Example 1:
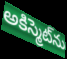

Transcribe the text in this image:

అకిస్మెట్‌ను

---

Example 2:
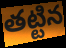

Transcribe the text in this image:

తట్టిన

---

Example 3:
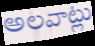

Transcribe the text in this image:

అలవాట్లు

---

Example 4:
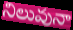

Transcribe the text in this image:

నిలువునా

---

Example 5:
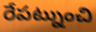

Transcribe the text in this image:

రేపట్నుంచి